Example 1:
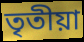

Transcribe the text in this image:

তৃতীয়া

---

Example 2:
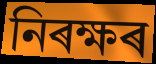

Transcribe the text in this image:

নিৰক্ষৰ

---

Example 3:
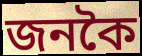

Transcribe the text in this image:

জনকৈ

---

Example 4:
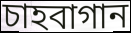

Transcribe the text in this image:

চাহবাগান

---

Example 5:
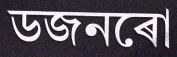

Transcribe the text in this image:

ডজনৰো